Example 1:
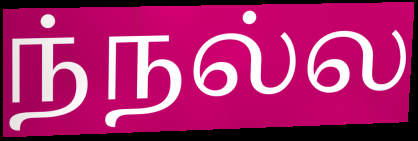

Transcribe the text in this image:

ந்நல்ல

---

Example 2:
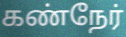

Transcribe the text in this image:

கண்நேர்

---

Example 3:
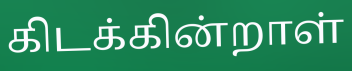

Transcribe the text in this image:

கிடக்கின்றாள்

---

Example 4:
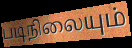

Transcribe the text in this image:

படிநிலையும்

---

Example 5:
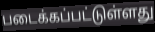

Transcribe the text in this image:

படைக்கப்பட்டுள்ளது